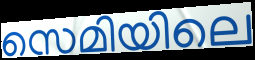
സെമിയിലെ